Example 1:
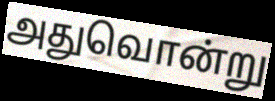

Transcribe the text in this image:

அதுவொன்று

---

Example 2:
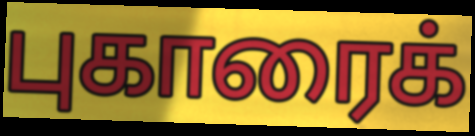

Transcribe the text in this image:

புகாரைக்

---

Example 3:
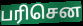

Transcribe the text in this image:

பரிசென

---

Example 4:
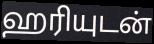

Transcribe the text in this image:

ஹரியுடன்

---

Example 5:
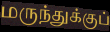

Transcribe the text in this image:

மருந்துக்குப்